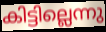
കിട്ടില്ലെന്നു